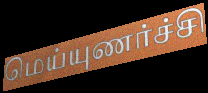
மெய்யுணர்ச்சி